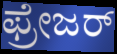
ಫ್ರೇಜರ್